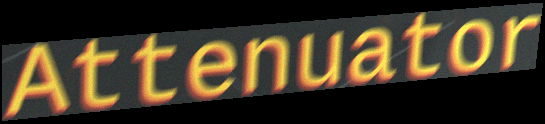
Attenuator